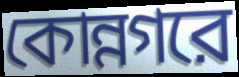
কোন্নগরে